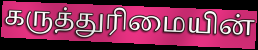
கருத்துரிமையின்